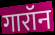
गारॉन